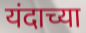
यंदाच्या